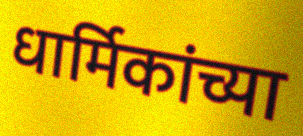
धार्मिकांच्या